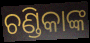
ଚଣ୍ଡିକାଙ୍କ